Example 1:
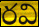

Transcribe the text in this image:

రవి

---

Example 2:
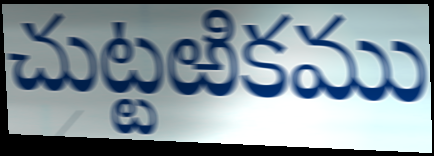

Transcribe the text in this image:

చుట్టఱికము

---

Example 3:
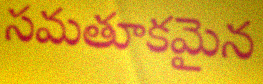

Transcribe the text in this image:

సమతూకమైన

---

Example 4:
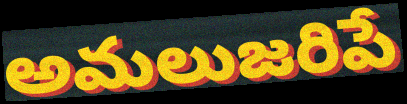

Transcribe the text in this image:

అమలుజరిపే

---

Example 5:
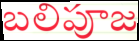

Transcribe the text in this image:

బలిపూజ